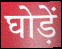
घोड़ें